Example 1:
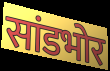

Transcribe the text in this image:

सांडभोर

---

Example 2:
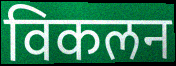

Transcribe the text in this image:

विकलन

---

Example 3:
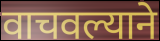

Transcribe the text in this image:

वाचवल्याने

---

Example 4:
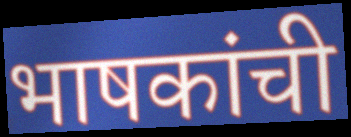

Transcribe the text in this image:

भाषकांची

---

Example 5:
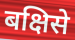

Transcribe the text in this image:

बक्षिसे